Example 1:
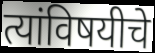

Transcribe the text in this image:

त्यांविषयीचे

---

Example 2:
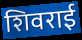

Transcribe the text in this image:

शिवराई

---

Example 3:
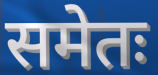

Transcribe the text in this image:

समेतः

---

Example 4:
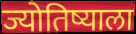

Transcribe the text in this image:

ज्योतिष्याला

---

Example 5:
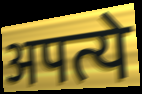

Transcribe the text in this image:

अपत्ये